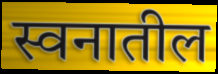
स्वनातील